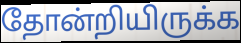
தோன்றியிருக்க